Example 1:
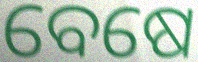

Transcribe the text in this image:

ବେଷେ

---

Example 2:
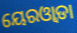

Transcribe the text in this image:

ୟେରଓ୍ୱାଡା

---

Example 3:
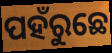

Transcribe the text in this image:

ପହଁରୁଛେ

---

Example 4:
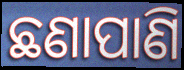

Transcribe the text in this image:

ଛଣାପାଣି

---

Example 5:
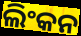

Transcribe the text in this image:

ଲିଂକନ